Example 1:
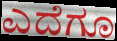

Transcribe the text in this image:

ಎದೆಗೂ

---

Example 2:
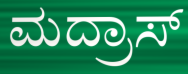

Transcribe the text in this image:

ಮದ್ರಾಸ್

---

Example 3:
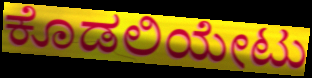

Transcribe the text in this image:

ಕೊಡಲಿಯೇಟು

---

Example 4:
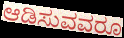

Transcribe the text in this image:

ಆಡಿಸುವವರೂ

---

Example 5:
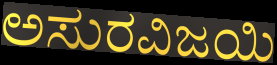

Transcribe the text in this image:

ಅಸುರವಿಜಯಿ